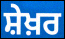
ਸ਼ੇਖ਼ਰ